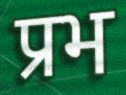
प्रभ